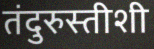
तंदुरुस्तीशी